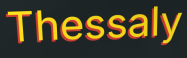
Thessaly